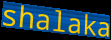
shalaka